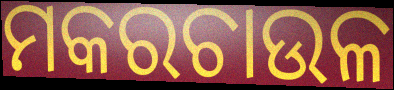
ମକରଚାଉଳ